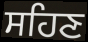
ਸਹਿਣ